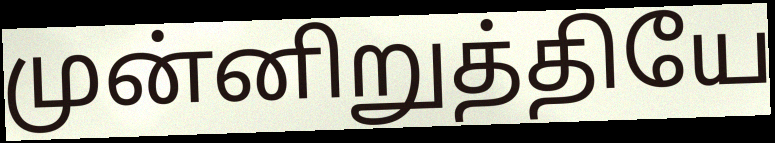
முன்னிறுத்தியே